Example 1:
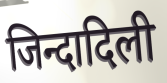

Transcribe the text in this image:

जिन्दादिली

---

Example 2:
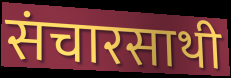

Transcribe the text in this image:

संचारसाथी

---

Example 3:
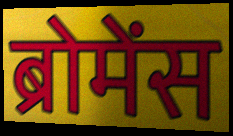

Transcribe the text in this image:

ब्रोमेंस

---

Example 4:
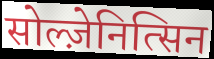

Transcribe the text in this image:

सोल्ज़ेनित्सिन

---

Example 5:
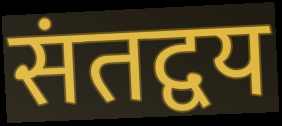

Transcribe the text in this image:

संतद्वय